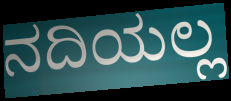
ನದಿಯಲ್ಲ